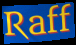
Raff